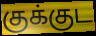
குக்குட